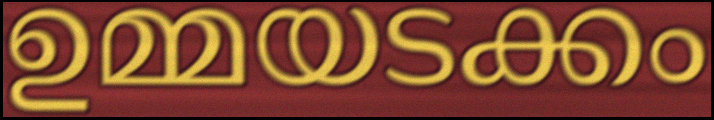
ഉമ്മയടക്കം